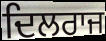
ਦਿਲਰਾਜ